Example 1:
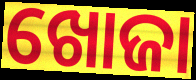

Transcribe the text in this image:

ଖୋଜା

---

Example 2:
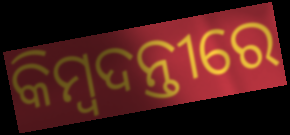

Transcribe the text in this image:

କିମ୍ବଦନ୍ତୀରେ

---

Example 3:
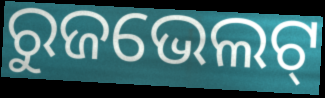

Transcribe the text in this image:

ରୁଜଭେଲଟ୍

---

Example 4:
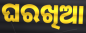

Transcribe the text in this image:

ଘରଖିଆ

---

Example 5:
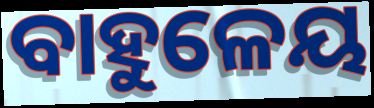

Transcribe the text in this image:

ବାହୁଳେୟ